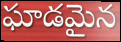
ఘాడమైన